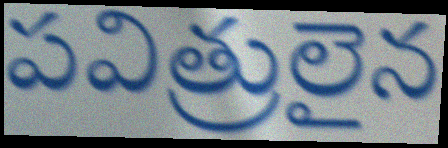
పవిత్రులైన